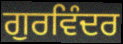
ਗੁਰਵਿੰਦਰ